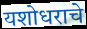
यशोधराचे